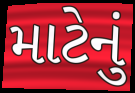
માટેનું